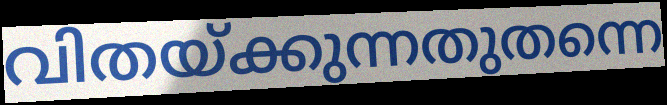
വിതയ്ക്കുന്നതുതന്നെ